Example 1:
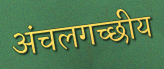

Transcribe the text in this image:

अंचलगच्छीय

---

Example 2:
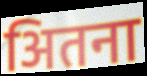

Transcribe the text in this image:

अितना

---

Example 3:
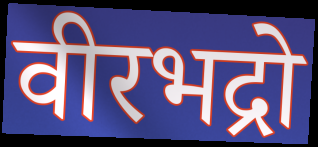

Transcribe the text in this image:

वीरभद्रो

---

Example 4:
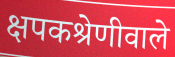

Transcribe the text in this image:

क्षपकश्रेणीवाले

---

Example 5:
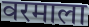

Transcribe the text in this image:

वरमाला